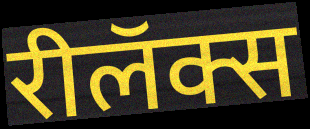
रीलॅक्स